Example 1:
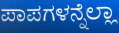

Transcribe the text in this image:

ಪಾಪಗಳನ್ನೆಲ್ಲಾ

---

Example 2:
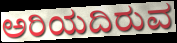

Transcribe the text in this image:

ಅರಿಯದಿರುವ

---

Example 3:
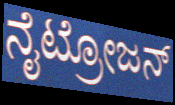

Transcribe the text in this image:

ನೈಟ್ರೋಜನ್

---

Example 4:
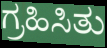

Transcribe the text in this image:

ಗ್ರಹಿಸಿತು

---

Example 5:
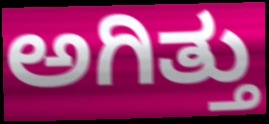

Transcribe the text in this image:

ಅಗಿತ್ತು